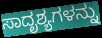
ಸಾದೃಶ್ಯಗಳನ್ನು